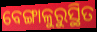
ବେଙ୍ଗାଳୁରୁସ୍ଥିତ